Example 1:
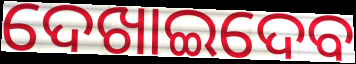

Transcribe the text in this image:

ଦେଖାଇଦେବ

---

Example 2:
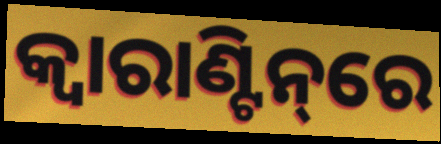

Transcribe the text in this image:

କ୍ବାରାଣ୍ଟିନ୍‌ରେ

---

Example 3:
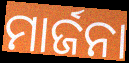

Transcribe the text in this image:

ମାର୍ଜନା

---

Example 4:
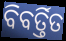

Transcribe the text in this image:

ବିବର୍ତ୍ତିତ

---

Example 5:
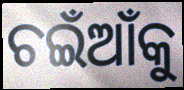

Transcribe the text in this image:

ଚଇଁଆଁକୁ